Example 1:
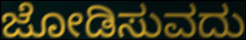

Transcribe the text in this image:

ಜೋಡಿಸುವದು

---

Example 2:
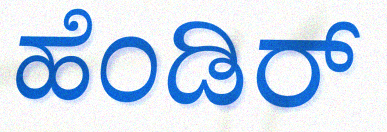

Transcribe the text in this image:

ಹೆಂಡಿರ್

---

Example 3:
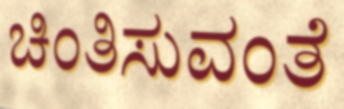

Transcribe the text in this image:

ಚಿಂತಿಸುವಂತೆ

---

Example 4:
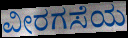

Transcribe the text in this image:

ವೀರಗಸೆಯ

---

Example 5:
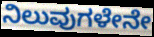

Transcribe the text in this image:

ನಿಲುವುಗಳೇನೇ